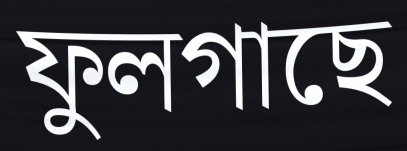
ফুলগাছে